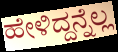
ಹೇಳಿದ್ದನ್ನೆಲ್ಲ